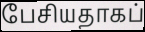
பேசியதாகப்